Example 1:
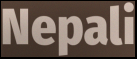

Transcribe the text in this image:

Nepali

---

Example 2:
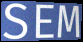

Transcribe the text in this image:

SEM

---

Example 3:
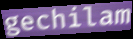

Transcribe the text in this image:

gechilam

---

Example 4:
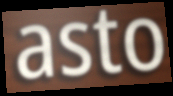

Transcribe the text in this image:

asto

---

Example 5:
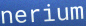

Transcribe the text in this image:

nerium